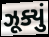
ઝૂક્યું